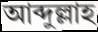
আব্দুল্লাহ